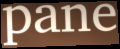
pane